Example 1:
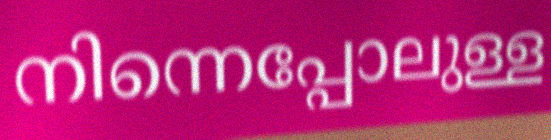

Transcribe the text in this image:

നിന്നെപ്പോലുള്ള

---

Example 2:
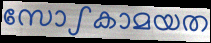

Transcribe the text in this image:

സോഽകാമയത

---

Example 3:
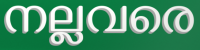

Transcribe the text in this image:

നല്ലവരെ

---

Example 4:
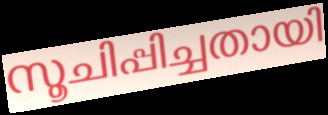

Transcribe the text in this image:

സൂചിപ്പിച്ചതായി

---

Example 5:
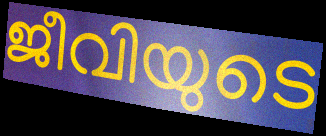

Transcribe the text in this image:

ജീവിയുടെ